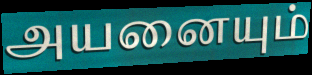
அயனையும்